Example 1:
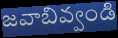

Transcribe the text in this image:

జవాబివ్వండి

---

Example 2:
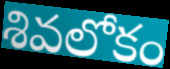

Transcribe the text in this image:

శివలోకం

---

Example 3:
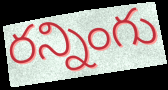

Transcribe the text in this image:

రన్నింగు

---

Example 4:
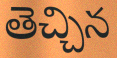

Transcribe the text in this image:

తెచ్చిన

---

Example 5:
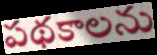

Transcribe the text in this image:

పథకాలను